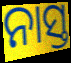
ନାସ୍ତ